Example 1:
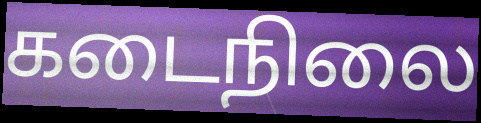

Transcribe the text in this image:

கடைநிலை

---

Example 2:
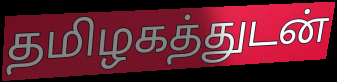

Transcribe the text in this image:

தமிழகத்துடன்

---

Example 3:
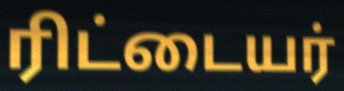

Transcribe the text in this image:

ரிட்டையர்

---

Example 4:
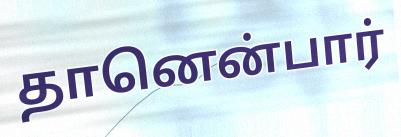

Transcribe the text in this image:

தானென்பார்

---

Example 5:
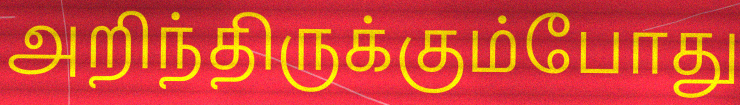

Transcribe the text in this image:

அறிந்திருக்கும்போது